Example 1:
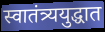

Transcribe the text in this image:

स्वातंत्र्ययुद्धात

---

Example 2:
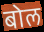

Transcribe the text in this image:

बोल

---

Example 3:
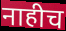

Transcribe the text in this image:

नाहीच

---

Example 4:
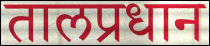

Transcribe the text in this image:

तालप्रधान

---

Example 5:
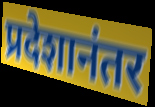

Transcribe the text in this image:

प्रदेशानंतर